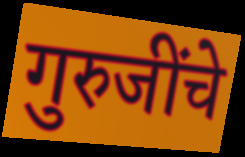
गुरुजींचे